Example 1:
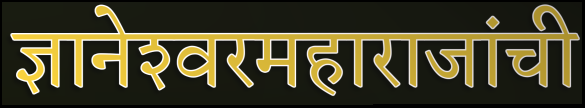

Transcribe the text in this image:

ज्ञानेश्वरमहाराजांची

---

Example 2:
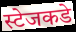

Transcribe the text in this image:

स्टेजकडे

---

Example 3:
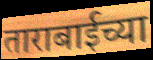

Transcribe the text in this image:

ताराबाईच्या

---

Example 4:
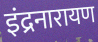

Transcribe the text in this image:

इंद्रनारायण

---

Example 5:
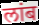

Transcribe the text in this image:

लांब